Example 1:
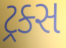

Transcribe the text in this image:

ટ્રક્સ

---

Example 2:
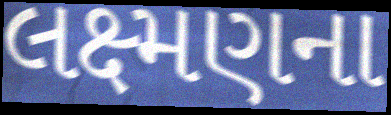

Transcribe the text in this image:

લક્ષ્મણના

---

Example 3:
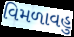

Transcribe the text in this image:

વિમળાવહુ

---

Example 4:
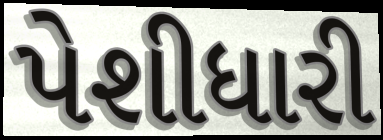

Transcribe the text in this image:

પેશીધારી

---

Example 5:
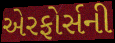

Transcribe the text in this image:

એરફોર્સની